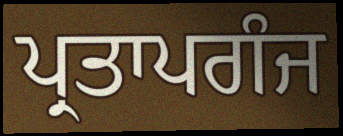
ਪ੍ਰਤਾਪਗੰਜ